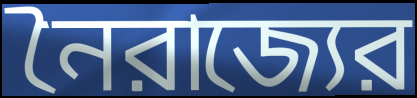
নৈরাজ্যের